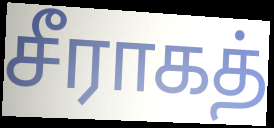
சீராகத்